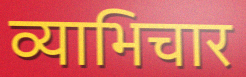
व्याभिचार